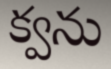
క్వను